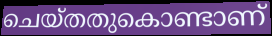
ചെയ്തതുകൊണ്ടാണ്